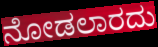
ನೋಡಲಾರದು